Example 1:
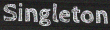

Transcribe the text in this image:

Singleton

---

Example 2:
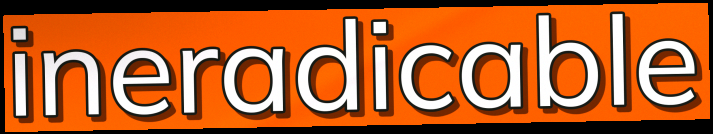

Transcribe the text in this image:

ineradicable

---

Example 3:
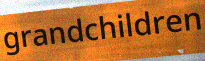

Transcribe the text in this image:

grandchildren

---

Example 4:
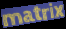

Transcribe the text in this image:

matrix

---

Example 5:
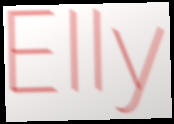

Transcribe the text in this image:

Elly